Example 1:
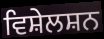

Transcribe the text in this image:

ਵਿਸ਼ੇਲਸ਼ਨ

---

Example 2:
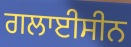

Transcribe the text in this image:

ਗਲਾਈਸੀਨ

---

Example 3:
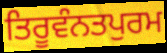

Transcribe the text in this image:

ਤਿਰੂਵੰਨਤਪੁਰਮ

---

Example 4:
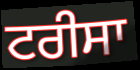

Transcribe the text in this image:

ਟਰੀਸਾ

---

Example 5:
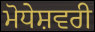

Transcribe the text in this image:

ਮੋਧੇਸ਼ਵਰੀ